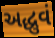
અદ્ધુવં